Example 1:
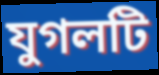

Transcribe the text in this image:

যুগলটি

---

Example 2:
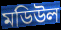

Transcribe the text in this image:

মডিউল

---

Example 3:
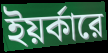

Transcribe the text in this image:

ইয়র্কারে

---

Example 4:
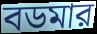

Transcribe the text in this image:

বডমার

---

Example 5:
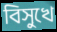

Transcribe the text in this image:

বিসুখে